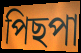
পিছপা